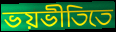
ভয়ভীতিতে